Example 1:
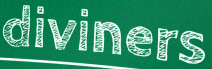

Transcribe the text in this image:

diviners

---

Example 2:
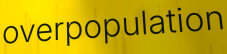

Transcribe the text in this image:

overpopulation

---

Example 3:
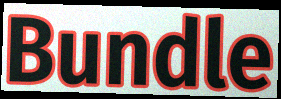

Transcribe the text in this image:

Bundle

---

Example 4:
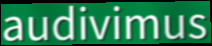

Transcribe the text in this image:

audivimus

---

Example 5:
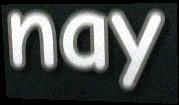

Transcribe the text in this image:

nay